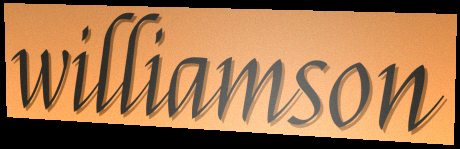
williamson